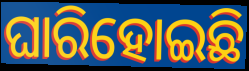
ଘାରିହୋଇଛି